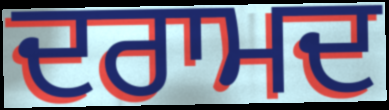
ਦਰਾਮਦ